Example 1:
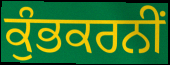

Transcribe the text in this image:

ਕੁੰਭਕਰਨੀਂ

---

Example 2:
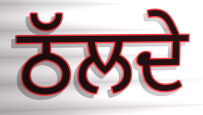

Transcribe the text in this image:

ਠੱਲਦੇ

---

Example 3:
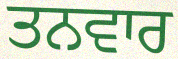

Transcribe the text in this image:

ਤਨਵਾਰ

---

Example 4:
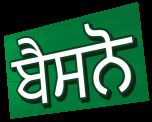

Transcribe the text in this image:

ਬੈਸਨੋ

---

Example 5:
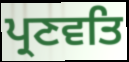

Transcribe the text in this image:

ਪ੍ਰਣਵਤਿ